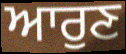
ਆਰੁਣ